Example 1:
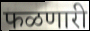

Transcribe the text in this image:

फळणारी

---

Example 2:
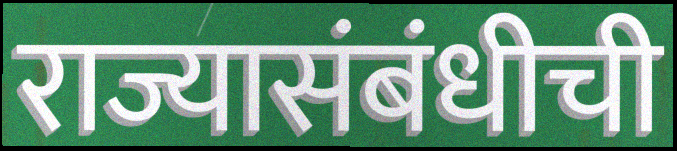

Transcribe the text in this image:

राज्यासंबंधीची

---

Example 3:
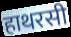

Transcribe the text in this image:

हाथरसी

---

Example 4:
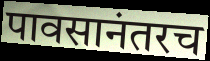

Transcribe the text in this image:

पावसानंतरच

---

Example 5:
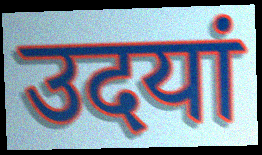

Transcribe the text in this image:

उदयां